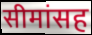
सीमांसह